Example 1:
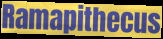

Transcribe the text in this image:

Ramapithecus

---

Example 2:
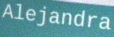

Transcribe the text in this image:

Alejandra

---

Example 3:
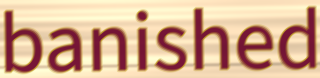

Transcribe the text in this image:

banished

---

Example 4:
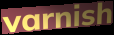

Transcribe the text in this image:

varnish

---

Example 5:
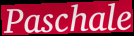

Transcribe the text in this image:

Paschale